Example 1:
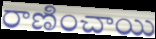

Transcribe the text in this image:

రాణించాయి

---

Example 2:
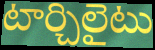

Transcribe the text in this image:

టార్చిలైటు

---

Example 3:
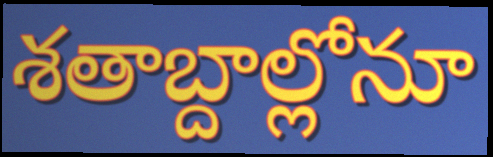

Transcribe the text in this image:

శతాబ్దాల్లోనూ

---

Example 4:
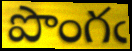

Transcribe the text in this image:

పొంగఁ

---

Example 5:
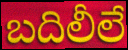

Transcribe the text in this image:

బదిలీలే